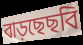
বাড়ছেছবি